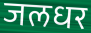
जलधर